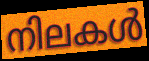
നിലകൾ